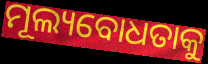
ମୂଲ୍ୟବୋଧତାକୁ